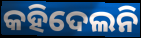
କହିଦେଲନି